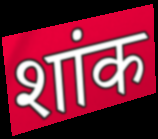
शांक